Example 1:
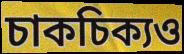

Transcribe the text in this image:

চাকচিক্যও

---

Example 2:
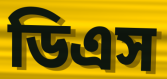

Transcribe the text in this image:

ডিএস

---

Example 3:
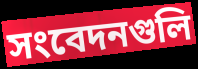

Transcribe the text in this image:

সংবেদনগুলি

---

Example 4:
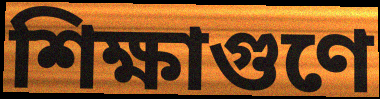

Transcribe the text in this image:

শিক্ষাগুণে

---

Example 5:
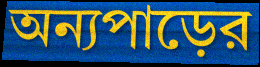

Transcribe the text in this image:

অন্যপাড়ের